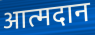
आत्मदान